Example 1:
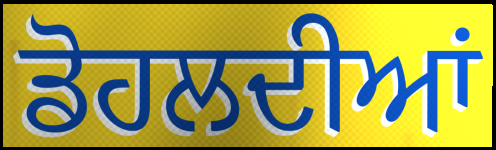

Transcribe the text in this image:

ਡੋਹਲਦੀਆਂ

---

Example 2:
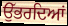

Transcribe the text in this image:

ਉੱਭਰਦਿਆਂ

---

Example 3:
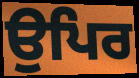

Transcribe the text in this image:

ਉਪਿਰ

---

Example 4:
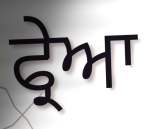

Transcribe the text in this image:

ਫ੍ਰੇਆ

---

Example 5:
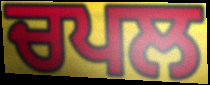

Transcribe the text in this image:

ਚਪਲ